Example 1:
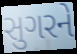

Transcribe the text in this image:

સુગરને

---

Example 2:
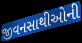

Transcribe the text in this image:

જીવનસાથીઓની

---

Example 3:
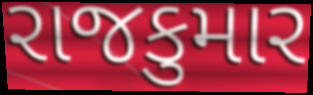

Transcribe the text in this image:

રાજકુમાર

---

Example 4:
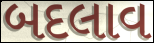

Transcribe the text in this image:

બદલાવ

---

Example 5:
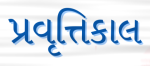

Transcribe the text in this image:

પ્રવૃત્તિકાલ